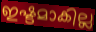
ഇഷ്ടമാകില്ല